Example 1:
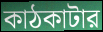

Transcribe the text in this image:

কাঠকাটার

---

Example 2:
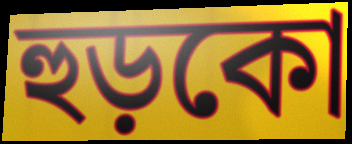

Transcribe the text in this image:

হুড়কো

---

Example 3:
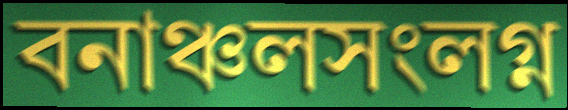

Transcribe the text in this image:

বনাঞ্চলসংলগ্ন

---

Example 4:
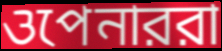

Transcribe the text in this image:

ওপেনাররা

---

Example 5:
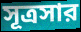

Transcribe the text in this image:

সূত্রসার